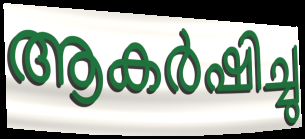
ആകർഷിച്ചു